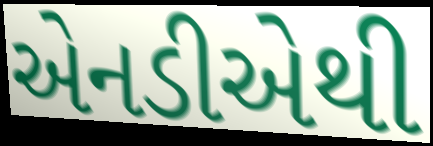
એનડીએથી